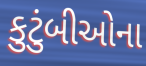
કુટુંબીઓના